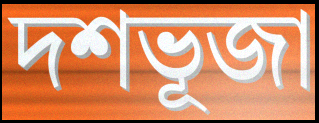
দশভূজা